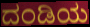
ದಂಡಿಯ